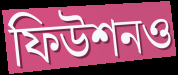
ফিউশনও